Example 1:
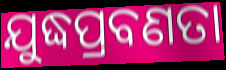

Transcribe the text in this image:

ଯୁଦ୍ଧପ୍ରବଣତା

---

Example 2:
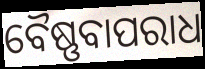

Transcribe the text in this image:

ବୈଷ୍ଣବାପରାଧ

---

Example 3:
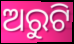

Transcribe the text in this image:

ଅରୁଟି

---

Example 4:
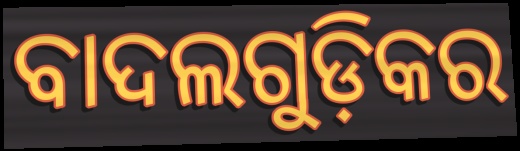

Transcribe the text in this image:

ବାଦଲଗୁଡ଼ିକର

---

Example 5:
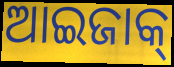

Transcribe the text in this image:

ଆଇଜାକ୍